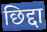
छिद्दा